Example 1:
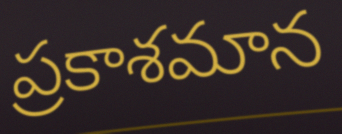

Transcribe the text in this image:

ప్రకాశమాన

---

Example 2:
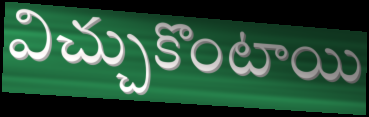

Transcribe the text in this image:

విచ్చుకొంటాయి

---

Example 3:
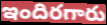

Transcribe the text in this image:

ఇందిరగారు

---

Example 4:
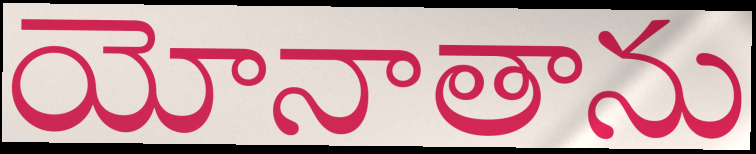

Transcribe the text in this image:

యోనాతాను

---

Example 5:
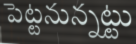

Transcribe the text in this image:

పెట్టనున్నట్టు